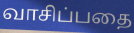
வாசிப்பதை